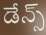
డేన్స్